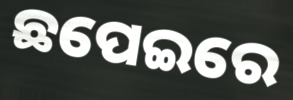
ଛପେଇରେ